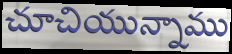
చూచియున్నాము